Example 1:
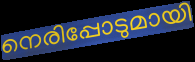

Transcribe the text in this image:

നെരിപ്പോടുമായി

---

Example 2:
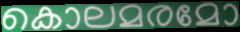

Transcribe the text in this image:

കൊലമരമോ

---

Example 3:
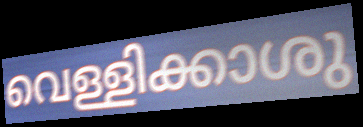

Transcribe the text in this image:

വെള്ളിക്കാശു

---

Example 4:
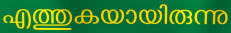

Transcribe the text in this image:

എത്തുകയായിരുന്നു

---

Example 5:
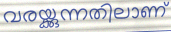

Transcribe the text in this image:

വരയ്ക്കുന്നതിലാണ്